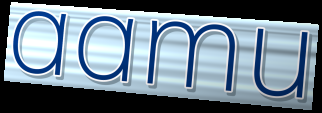
aamu